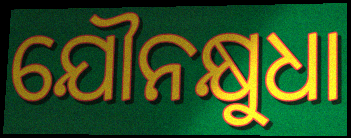
ଯୌନକ୍ଷୁଧା